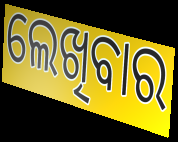
ଲେଖିବାର